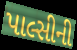
પાલ્સીની